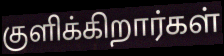
குளிக்கிறார்கள்